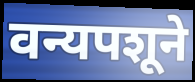
वन्यपशूने